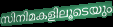
സിനിമകളിലൂടെയും